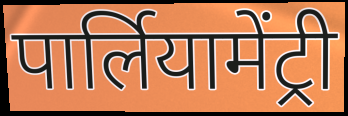
पार्लियामेंट्री